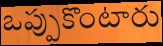
ఒప్పుకొంటారు